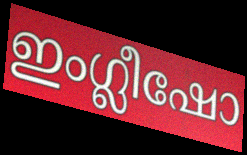
ഇംഗ്ലീഷോ